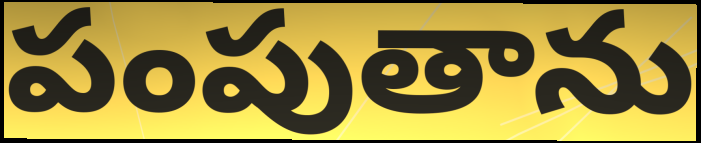
పంపుతాను